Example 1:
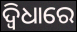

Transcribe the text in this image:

ଦ୍ୱିଧାରେ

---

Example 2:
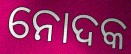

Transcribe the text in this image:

ନୋଦକ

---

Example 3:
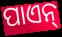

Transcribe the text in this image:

ପାଏନ୍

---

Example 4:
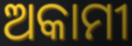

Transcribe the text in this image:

ଅକାମୀ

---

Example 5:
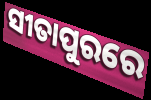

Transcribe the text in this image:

ସୀତାପୁରରେ